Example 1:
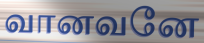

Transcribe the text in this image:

வானவனே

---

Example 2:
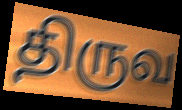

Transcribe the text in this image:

திருவ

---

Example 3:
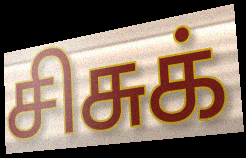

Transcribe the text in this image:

சிசுக்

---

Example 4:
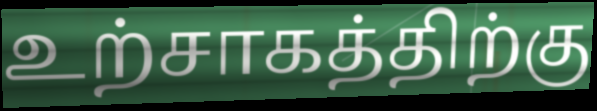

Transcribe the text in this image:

உற்சாகத்திற்கு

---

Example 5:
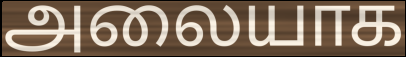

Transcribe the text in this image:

அலையாக